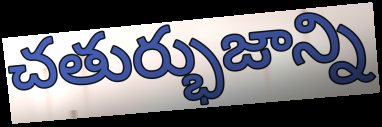
చతుర్భుజాన్ని